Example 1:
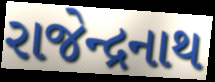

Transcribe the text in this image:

રાજેન્દ્રનાથ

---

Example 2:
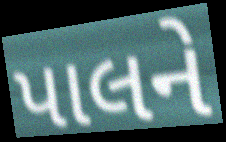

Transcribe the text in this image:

પાલને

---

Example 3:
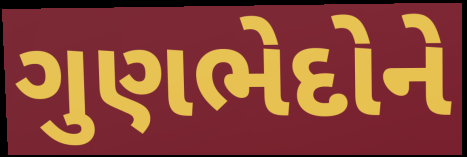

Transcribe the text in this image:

ગુણભેદોને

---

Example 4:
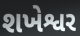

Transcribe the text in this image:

શખેશ્વર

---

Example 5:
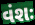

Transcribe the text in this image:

વંશઃ